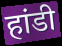
हांडी